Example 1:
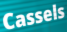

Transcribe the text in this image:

Cassels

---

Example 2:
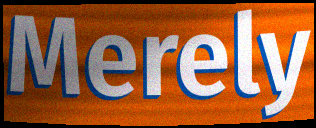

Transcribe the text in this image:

Merely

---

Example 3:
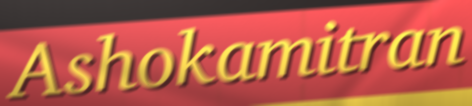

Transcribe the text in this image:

Ashokamitran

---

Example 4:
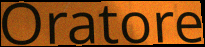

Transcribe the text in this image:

Oratore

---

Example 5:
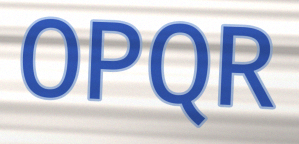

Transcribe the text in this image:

OPQR